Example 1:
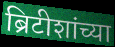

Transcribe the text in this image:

ब्रिटीशांच्या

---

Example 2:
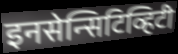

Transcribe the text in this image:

इनसेन्सिटिव्हिटी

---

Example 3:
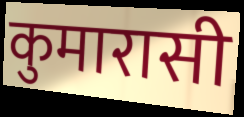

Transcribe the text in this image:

कुमारासी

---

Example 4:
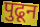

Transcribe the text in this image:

पुढून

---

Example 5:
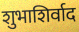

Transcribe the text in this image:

शुभाशिर्वाद